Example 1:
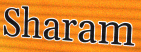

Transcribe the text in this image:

Sharam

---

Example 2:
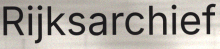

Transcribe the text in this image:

Rijksarchief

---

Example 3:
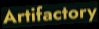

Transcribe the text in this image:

Artifactory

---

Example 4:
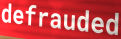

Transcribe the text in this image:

defrauded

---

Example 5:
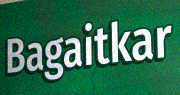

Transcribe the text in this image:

Bagaitkar